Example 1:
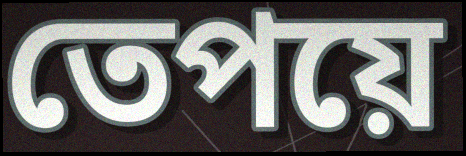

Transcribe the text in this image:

তেপয়ে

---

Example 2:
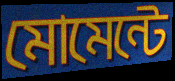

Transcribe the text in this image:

মোমেন্টে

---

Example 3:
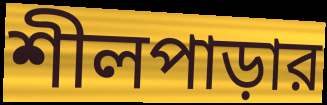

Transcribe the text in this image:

শীলপাড়ার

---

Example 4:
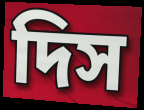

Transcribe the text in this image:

দিস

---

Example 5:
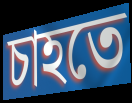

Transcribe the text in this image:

চাহতে